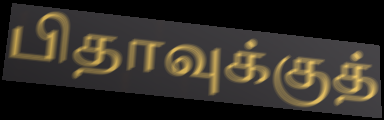
பிதாவுக்குத்